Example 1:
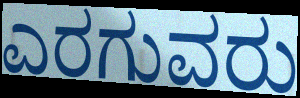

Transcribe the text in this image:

ಎರಗುವರು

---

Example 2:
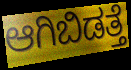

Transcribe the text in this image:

ಆಗಿಬಿಡತ್ತೆ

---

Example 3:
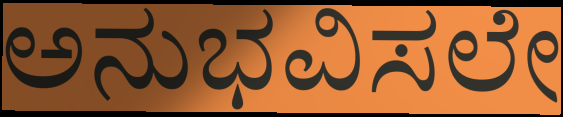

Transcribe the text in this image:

ಅನುಭವಿಸಲೇ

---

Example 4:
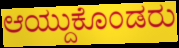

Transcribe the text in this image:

ಆಯ್ದುಕೊಂಡರು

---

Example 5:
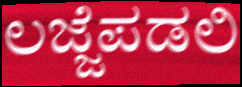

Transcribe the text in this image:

ಲಜ್ಜೆಪಡಲಿ